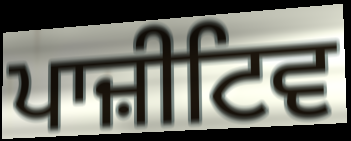
ਪਾਜ਼ੀਟਿਵ